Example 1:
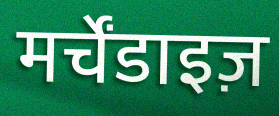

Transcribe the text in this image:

मर्चेंडाइज़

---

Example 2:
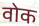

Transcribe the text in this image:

वोक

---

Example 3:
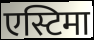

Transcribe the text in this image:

एस्टिमा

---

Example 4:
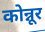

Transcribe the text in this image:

कोन्नूर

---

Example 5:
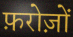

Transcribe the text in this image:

फ़रोज़ों